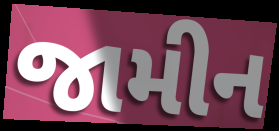
જામીન